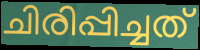
ചിരിപ്പിച്ചത്